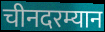
चीनदरम्यान